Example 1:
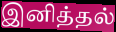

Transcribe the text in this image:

இனித்தல்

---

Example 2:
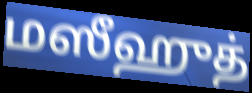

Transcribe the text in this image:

மஸீஹுத்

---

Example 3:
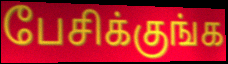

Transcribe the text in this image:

பேசிக்குங்க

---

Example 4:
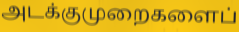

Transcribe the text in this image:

அடக்குமுறைகளைப்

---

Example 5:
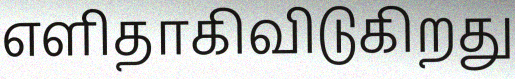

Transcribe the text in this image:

எளிதாகிவிடுகிறது